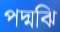
পদ্মঝি